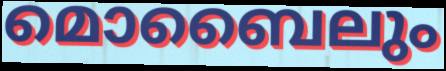
മൊബൈലും